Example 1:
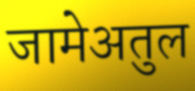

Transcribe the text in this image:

जामेअतुल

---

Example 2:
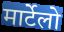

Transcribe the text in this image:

मार्टेलो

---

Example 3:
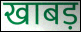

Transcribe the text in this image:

खाबड़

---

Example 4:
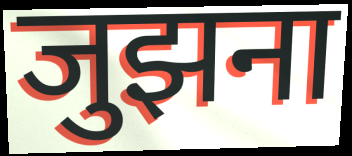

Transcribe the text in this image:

जुझना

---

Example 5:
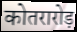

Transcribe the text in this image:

कोतरारोड़